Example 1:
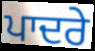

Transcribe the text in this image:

ਪਾਦਰੇ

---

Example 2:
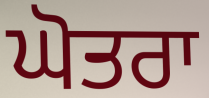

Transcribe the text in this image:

ਘੋਤਰਾ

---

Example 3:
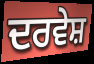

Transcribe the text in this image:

ਦਰਵੇਸ਼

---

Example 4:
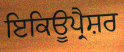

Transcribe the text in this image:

ਇਕਿਊਪ੍ਰੈਸ਼ਰ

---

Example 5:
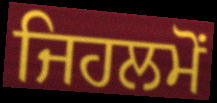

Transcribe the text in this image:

ਜਿਹਲਮੋਂ